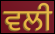
ਵਲੀ